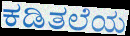
ಕಡಿತಲೆಯ